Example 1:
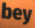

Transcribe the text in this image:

bey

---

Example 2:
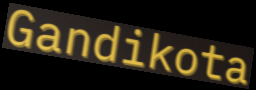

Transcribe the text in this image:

Gandikota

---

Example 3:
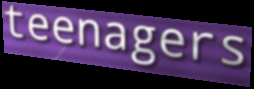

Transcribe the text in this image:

teenagers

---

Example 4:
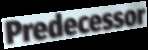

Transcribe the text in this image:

Predecessor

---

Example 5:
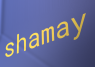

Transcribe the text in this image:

shamay